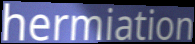
hermiation